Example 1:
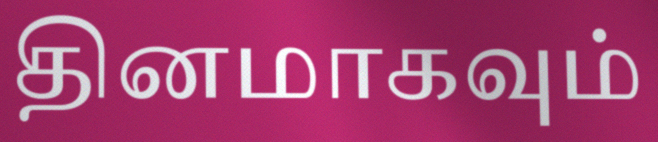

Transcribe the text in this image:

தினமாகவும்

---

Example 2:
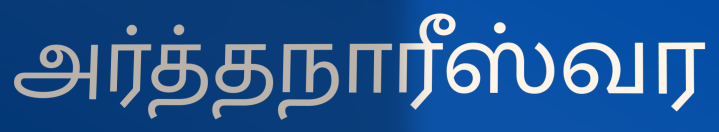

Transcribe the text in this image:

அர்த்தநாரீஸ்வர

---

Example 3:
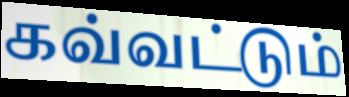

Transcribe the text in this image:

கவ்வட்டும்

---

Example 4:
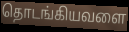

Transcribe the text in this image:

தொடங்கியவளை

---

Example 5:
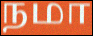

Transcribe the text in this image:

நமா